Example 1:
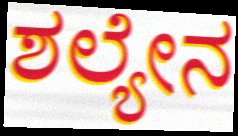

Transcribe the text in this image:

ಶಲ್ಯೇನ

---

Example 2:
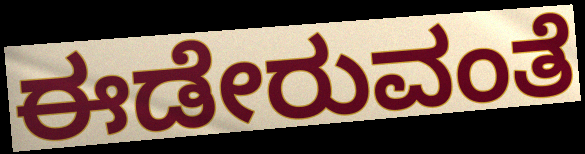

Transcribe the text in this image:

ಈಡೇರುವಂತೆ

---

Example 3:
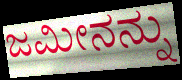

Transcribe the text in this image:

ಜಮೀನನ್ನು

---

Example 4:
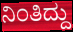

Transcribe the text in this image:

ನಿಂತಿದ್ದು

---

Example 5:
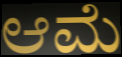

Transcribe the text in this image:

ಆಮೆ